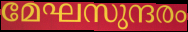
മേഘസുന്ദരം